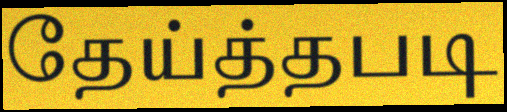
தேய்த்தபடி